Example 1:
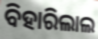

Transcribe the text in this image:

ବିହାରିଲାଲ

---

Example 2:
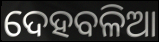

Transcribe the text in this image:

ଦେହବଳିଆ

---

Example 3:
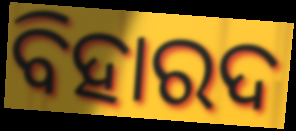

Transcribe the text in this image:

ବିହାରଦ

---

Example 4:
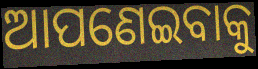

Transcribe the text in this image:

ଆପଣେଇବାକୁ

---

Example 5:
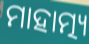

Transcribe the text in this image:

ମାହାତ୍ମ୍ୟ